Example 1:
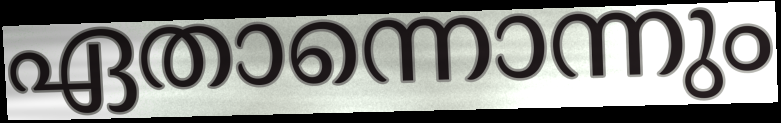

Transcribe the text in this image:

ഏതാന്നൊന്നും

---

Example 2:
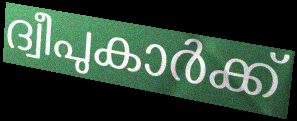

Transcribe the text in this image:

ദ്വീപുകാർക്ക്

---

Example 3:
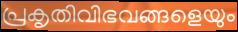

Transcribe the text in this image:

പ്രകൃതിവിഭവങ്ങളെയും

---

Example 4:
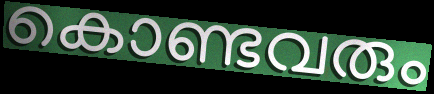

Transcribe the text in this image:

കൊണ്ടവരും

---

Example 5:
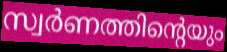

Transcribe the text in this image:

സ്വർണത്തിന്റെയും